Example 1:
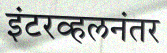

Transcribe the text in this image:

इंटरव्हलनंतर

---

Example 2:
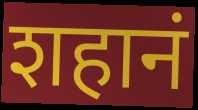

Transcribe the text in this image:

शहानं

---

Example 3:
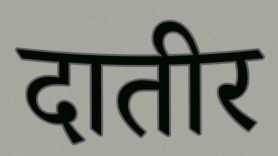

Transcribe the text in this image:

दातीर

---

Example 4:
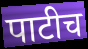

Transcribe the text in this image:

पाटीच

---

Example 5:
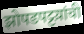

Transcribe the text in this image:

झोपडपट्टय़ांची